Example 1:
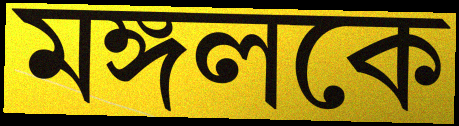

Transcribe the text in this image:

মঙ্গলকে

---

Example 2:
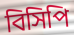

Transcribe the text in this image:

বিসিপি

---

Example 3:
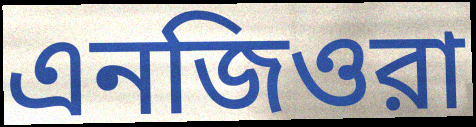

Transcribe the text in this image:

এনজিওরা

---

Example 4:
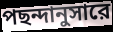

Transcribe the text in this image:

পছন্দানুসারে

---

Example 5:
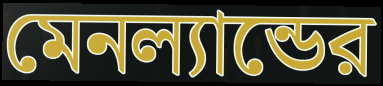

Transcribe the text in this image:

মেনল্যান্ডের